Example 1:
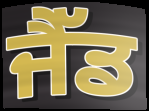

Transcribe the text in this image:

ਜੈੱਡ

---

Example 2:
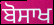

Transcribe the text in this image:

ਬੋਸਾਖ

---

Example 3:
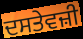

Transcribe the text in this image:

ਦਸਤੇਵਜ਼ੀ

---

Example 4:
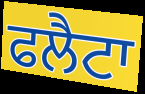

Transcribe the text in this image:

ਫਲੈਟਾ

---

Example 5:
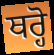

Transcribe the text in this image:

ਥਰ੍ਹੋ